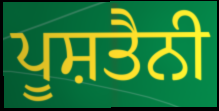
ਪੂਸ਼ਤੈਨੀ